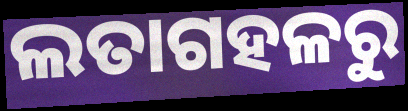
ଲତାଗହଳରୁ